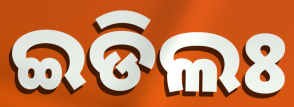
ଇଡିଲଃ